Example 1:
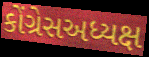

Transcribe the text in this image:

કોંગ્રેસઅધ્યક્ષ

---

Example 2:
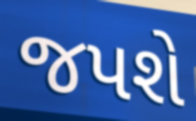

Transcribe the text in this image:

જપશે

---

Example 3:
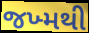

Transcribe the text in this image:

જખ્મથી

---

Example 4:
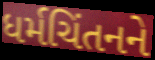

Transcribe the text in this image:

ધર્મચિંતનને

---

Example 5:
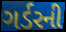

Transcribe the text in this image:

ગર્ડરની